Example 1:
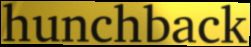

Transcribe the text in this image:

hunchback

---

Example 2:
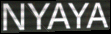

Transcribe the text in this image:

NYAYA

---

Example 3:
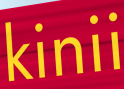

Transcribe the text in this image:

kinii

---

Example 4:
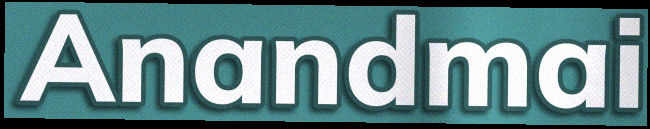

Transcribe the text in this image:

Anandmai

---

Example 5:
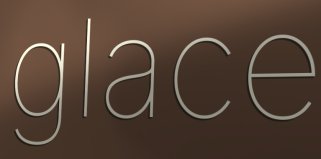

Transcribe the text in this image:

glace